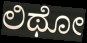
ಲಿಥೋ